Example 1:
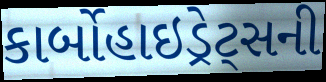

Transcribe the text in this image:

કાર્બોહાઇડ્રેટ્સની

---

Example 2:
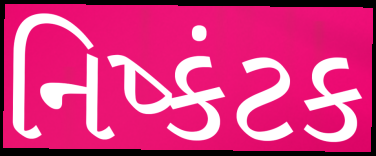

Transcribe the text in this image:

નિષ્કંટક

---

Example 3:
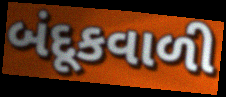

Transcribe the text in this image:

બંદૂકવાળી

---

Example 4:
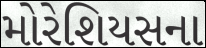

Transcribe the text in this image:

મોરેશિયસના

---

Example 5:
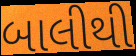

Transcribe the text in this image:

બાલીથી